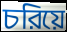
চরিয়ে